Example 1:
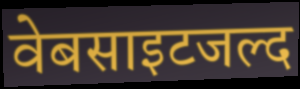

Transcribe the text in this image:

वेबसाइटजल्द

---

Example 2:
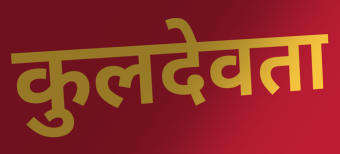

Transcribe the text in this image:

कुलदेवता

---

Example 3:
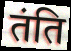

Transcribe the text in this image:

तंति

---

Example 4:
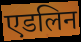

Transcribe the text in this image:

एडलिन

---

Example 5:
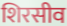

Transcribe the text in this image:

शिरसीव